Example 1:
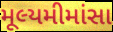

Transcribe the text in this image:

મૂલ્યમીમાંસા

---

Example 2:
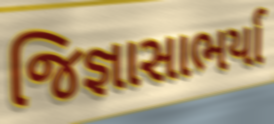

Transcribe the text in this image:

જિજ્ઞાસાભર્યા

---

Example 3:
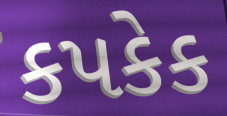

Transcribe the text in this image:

કપકેક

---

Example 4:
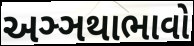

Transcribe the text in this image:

અઞ્ઞથાભાવો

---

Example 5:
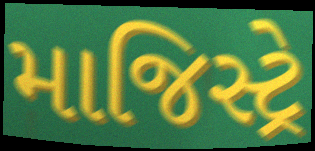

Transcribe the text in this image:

માજિસ્ટ્રે